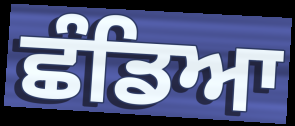
ਛੰਡਿਆ